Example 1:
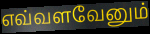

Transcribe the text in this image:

எவ்வளவேனும்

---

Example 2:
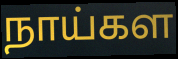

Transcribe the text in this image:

நாய்கள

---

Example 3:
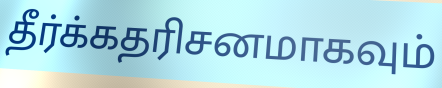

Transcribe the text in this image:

தீர்க்கதரிசனமாகவும்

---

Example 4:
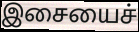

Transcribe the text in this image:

இசையைச்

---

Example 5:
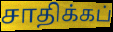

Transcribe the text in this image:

சாதிக்கப்